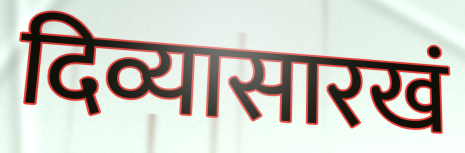
दिव्यासारखं